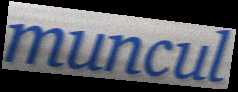
muncul